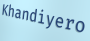
Khandiyero